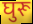
घुरू